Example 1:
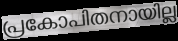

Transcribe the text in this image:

പ്രകോപിതനായില്ല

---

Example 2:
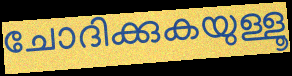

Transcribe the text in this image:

ചോദിക്കുകയുള്ളൂ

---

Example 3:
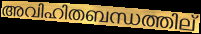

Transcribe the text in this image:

അവിഹിതബന്ധത്തില്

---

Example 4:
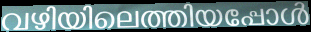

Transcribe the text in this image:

വഴിയിലെത്തിയപ്പോൾ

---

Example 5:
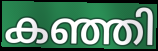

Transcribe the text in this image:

കഞ്ഞി